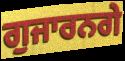
ਗੁਜਾਰਨਗੇ